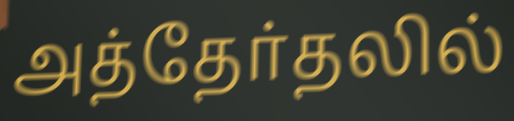
அத்தேர்தலில்